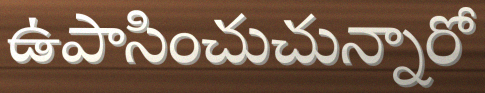
ఉపాసించుచున్నారో